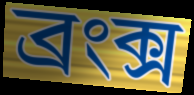
ব্রংক্স